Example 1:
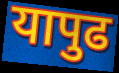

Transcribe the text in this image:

यापुढ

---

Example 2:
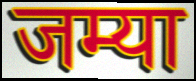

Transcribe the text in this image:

जम्या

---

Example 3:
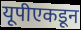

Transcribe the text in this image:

यूपीएकडून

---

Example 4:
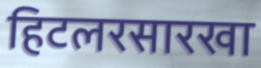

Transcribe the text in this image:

हिटलरसारखा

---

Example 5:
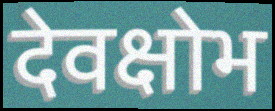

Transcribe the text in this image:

देवक्षोभ